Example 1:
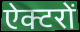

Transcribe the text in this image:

ऐक्टरों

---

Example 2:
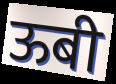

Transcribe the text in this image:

ऊबी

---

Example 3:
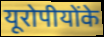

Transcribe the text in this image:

यूरोपीयोंके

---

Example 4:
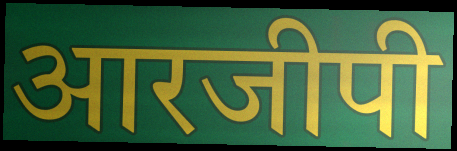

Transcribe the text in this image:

आरजीपी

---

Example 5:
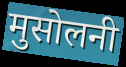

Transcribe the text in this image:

मुसोलनी